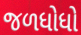
જળધોધો